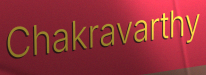
Chakravarthy